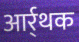
आर्र्थक